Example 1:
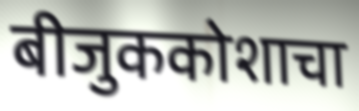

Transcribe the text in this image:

बीजुककोशाचा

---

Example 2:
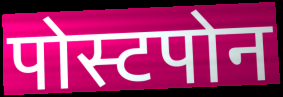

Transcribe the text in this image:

पोस्टपोन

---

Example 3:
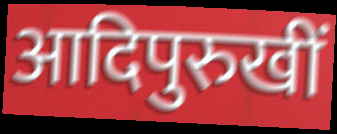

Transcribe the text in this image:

आदिपुरुखीं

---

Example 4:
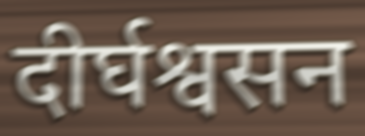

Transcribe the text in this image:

दीर्घश्वसन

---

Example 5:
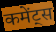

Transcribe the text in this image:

कमेंट्‌स